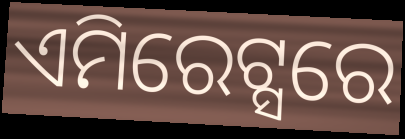
ଏମିରେଟ୍ସରେ